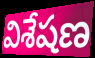
విశేషణ